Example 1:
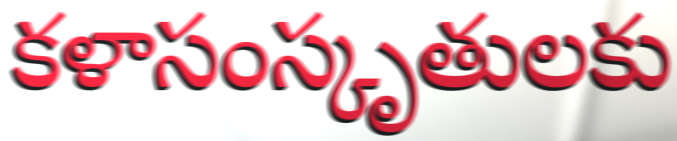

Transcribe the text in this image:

కళాసంస్కృతులకు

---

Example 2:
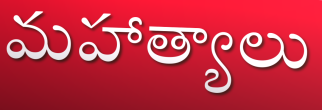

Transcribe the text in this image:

మహాత్యాలు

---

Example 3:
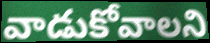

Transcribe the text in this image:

వాడుకోవాలని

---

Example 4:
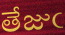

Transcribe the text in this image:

తేజుఁ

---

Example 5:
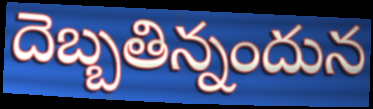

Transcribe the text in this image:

దెబ్బతిన్నందున